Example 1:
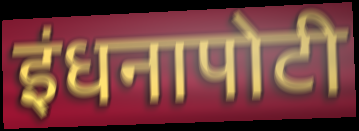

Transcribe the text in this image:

इंधनापोटी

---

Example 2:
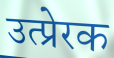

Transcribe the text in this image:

उत्प्रेरक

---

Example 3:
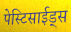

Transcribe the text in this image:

पेस्टिसाईड्स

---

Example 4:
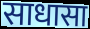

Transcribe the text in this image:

साधासा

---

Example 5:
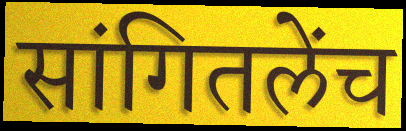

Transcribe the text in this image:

सांगितलेंच